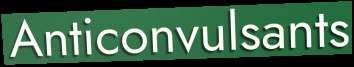
Anticonvulsants